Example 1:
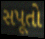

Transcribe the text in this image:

સપૂતો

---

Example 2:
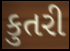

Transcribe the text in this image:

કુતરી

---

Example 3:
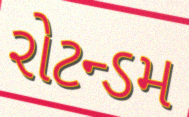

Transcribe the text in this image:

રોટન્ડમ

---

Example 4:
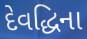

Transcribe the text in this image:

દેવદ્ધિના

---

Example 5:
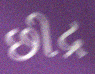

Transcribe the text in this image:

છીદ્ર